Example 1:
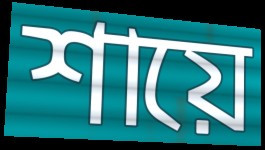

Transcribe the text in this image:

শায়ে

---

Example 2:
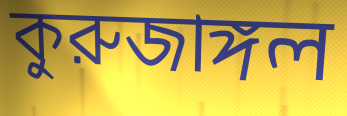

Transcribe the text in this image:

কুরুজাঙ্গল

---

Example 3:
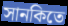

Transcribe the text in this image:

সানকিতে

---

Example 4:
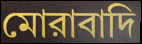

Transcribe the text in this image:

মোরাবাদি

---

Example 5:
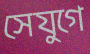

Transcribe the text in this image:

সেযুগে